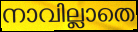
നാവില്ലാതെ